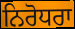
ਨਿਰੋਧਰਾ